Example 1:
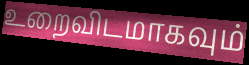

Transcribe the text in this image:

உறைவிடமாகவும்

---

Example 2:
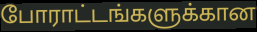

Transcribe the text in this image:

போராட்டங்களுக்கான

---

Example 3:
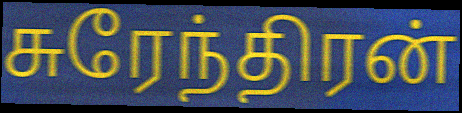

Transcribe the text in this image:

சுரேந்திரன்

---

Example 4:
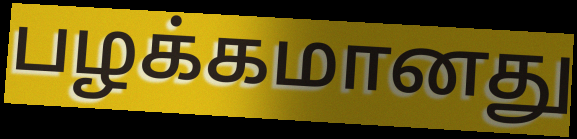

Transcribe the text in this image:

பழக்கமானது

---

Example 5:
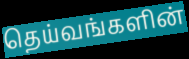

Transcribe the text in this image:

தெய்வங்களின்